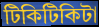
টিকিটিকিটা